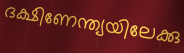
ദക്ഷിണേന്ത്യയിലേക്കു